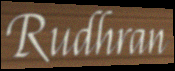
Rudhran